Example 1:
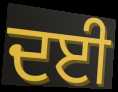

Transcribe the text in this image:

ਦਈ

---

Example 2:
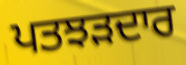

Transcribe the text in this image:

ਪਤਝੜਦਾਰ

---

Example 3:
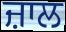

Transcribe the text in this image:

ਜ਼ਾਲ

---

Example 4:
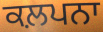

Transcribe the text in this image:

ਕਲ਼ਪਨਾ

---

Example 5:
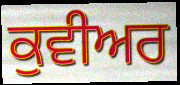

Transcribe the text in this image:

ਕੁਵੀਅਰ